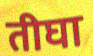
तीघा